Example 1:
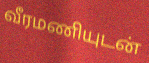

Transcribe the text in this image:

வீரமணியுடன்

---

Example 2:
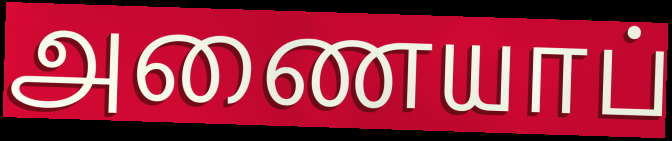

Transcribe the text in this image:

அணையாப்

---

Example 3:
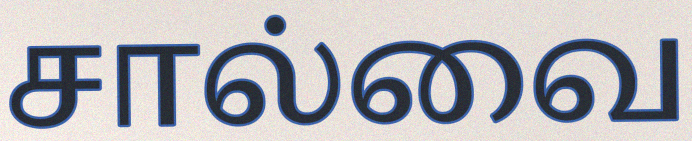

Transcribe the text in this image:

சால்வை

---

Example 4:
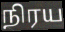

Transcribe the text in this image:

நிரய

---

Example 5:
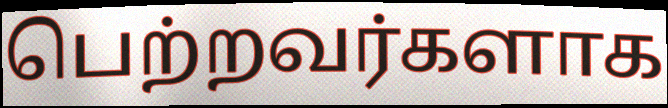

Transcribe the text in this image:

பெற்றவர்களாக